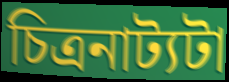
চিত্রনাট্যটা